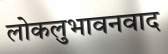
लोकलुभावनवाद